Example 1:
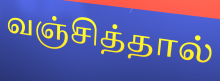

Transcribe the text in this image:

வஞ்சித்தால்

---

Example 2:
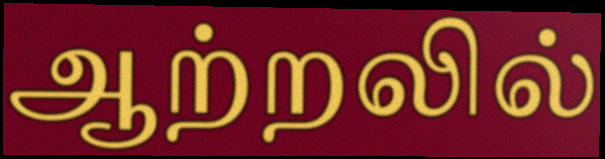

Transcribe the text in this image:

ஆற்றலில்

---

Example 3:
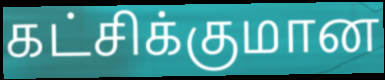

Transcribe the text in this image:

கட்சிக்குமான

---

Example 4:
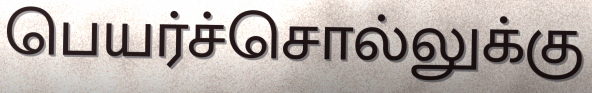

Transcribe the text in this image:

பெயர்ச்சொல்லுக்கு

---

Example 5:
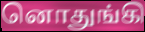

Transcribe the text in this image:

னொதுங்கி